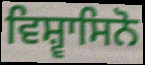
ਵਿਸ਼੍ਵਾਸਿਨੋ